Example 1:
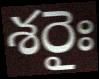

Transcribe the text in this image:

శరైః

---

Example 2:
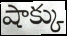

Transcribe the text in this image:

షాక్కు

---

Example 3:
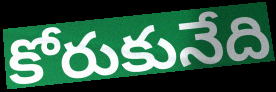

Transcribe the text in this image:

కోరుకునేది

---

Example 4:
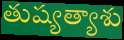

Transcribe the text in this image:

తుష్యత్యాశు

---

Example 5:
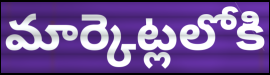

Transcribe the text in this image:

మార్కెట్లలోకి